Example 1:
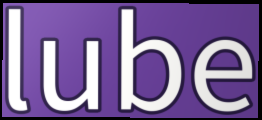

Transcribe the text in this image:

lube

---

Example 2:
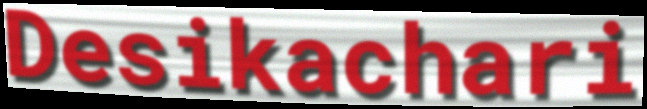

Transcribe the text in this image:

Desikachari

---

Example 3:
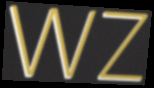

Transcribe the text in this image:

WZ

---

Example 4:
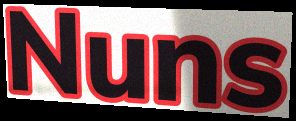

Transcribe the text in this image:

Nuns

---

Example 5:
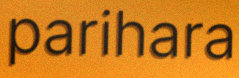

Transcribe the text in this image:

parihara